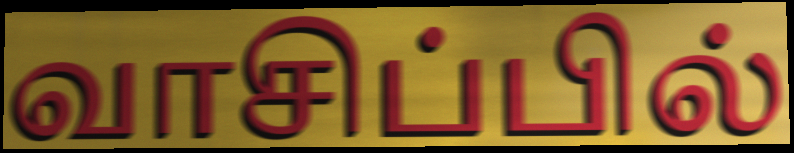
வாசிப்பில்